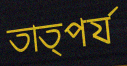
তাত্পর্য